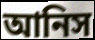
আনিস